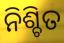
ନିଶ୍ଚିତ